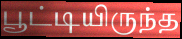
பூட்டியிருந்த